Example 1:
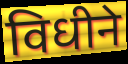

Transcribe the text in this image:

विधीने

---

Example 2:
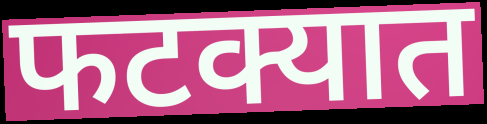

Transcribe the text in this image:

फटक्यात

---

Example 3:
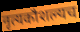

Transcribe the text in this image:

नृत्यकौशल्यच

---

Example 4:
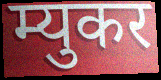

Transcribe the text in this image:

म्युकर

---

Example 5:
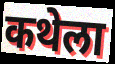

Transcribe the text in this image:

कथेला